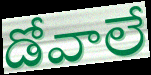
డోవాలే